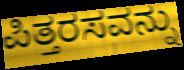
ಪಿತ್ತರಸವನ್ನು